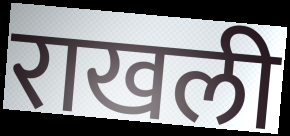
राखली